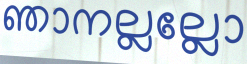
ഞാനല്ലല്ലോ